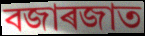
বজাৰজাত